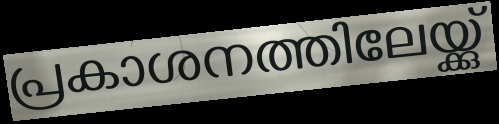
പ്രകാശനത്തിലേയ്ക്കു്